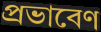
প্রভাবেণ